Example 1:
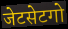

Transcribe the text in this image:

जेटसेटगो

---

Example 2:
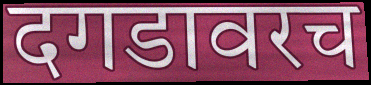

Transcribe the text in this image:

दगडावरच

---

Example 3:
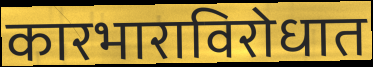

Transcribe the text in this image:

कारभाराविरोधात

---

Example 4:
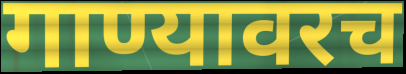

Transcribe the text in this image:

गाण्यावरच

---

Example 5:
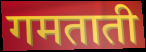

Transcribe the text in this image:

गमताती